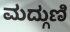
ಮದ್ಗುಣಿ